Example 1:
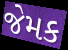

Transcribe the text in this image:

જેમક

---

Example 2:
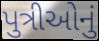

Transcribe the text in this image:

પુત્રીઓનું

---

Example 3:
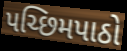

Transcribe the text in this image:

પચ્છિમપાઠો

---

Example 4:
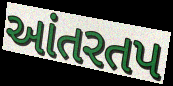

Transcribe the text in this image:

આંતરતપ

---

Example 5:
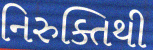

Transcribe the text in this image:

નિરુક્તિથી